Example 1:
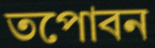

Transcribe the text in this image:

তপোবন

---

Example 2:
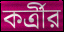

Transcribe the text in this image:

কর্ত্রীর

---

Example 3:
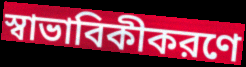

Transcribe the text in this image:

স্বাভাবিকীকরণে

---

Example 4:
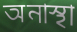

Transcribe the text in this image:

অনাস্থা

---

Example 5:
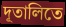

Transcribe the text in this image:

দূতালিতে